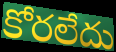
కోరలేదు